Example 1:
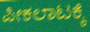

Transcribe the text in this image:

ಪೀಕಲಾಟಕ್ಕೆ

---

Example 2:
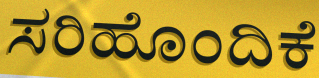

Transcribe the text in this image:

ಸರಿಹೊಂದಿಕೆ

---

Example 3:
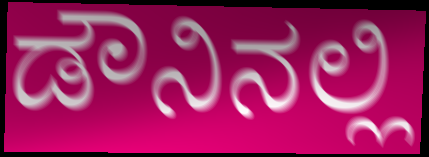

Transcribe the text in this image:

ಡೌನಿನಲ್ಲಿ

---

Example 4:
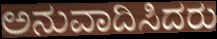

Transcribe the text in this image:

ಅನುವಾದಿಸಿದರು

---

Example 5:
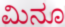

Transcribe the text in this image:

ಮಿನೂ